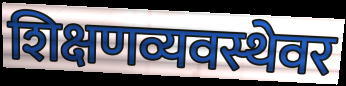
शिक्षणव्यवस्थेवर